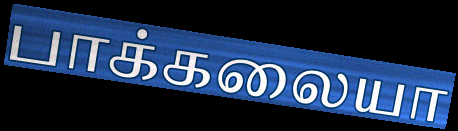
பாக்கலையா